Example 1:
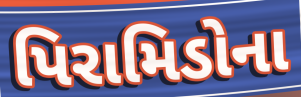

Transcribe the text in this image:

પિરામિડોના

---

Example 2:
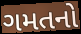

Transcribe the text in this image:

ગમતનો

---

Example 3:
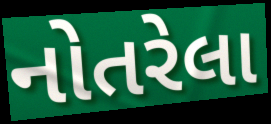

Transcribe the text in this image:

નોતરેલા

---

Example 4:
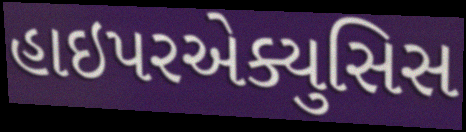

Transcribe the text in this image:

હાઇપરએક્યુસિસ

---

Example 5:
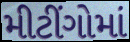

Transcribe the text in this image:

મીટીંગોમાં